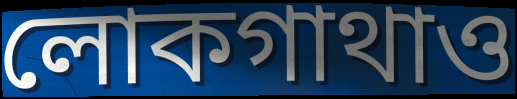
লোকগাথাও